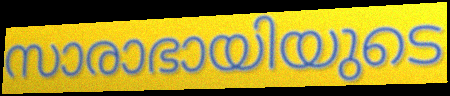
സാരാഭായിയുടെ